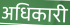
अधिकारी